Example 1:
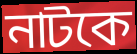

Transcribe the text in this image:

নাটকে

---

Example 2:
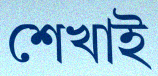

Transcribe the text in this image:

শেখাই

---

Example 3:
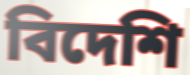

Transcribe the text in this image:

বিদেশি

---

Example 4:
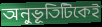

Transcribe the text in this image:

অনুভূতিটিকেই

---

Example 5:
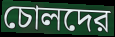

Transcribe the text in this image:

চোলদের